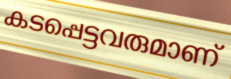
കടപ്പെട്ടവരുമാണ്